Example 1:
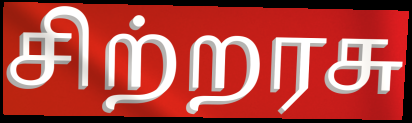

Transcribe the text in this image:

சிற்றரசு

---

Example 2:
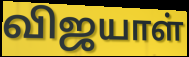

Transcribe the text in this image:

விஜயாள்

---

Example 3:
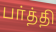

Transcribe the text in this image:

பர்த்தி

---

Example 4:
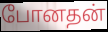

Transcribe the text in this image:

போனதன்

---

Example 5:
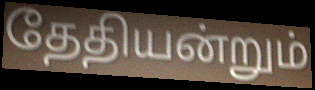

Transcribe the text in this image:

தேதியன்றும்